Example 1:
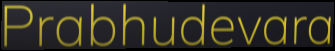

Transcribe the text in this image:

Prabhudevara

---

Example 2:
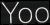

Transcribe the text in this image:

Yoo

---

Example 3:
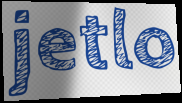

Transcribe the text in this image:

jetlo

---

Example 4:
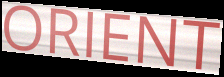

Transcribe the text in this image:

ORIENT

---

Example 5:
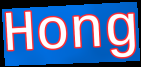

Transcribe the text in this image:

Hong